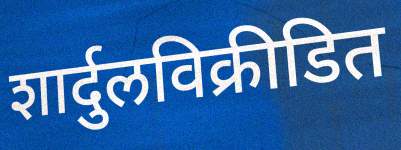
शार्दुलविक्रीडित